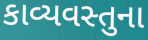
કાવ્યવસ્તુના